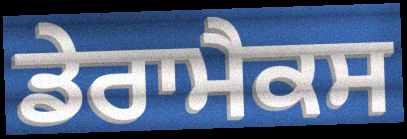
ਡੇਰਾਮੈਕਸ